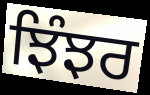
ਝਿੰਝਰ